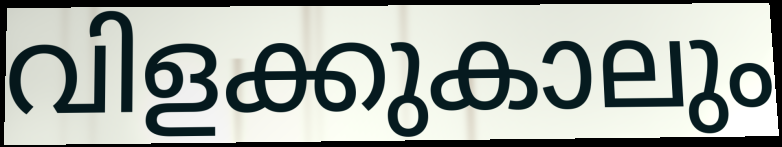
വിളക്കുകാലും